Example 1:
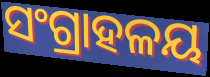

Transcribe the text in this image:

ସଂଗ୍ରାହଳୟ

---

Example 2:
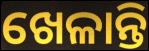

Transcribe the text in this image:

ଖେଳାନ୍ତି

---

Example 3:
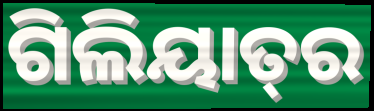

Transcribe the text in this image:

ଗିଲିୟାତ୍‍ର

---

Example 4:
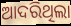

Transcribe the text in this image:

ଆଦରିଥିଲା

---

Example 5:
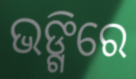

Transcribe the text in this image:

ଭଙ୍ଗିରେ